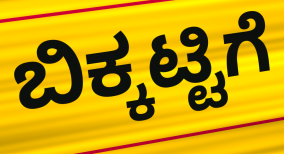
ಬಿಕ್ಕಟ್ಟಿಗೆ